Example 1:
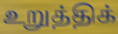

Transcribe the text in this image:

உறுத்திக்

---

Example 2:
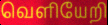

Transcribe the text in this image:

வெளியேறி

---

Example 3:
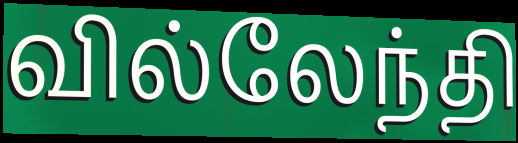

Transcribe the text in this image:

வில்லேந்தி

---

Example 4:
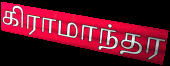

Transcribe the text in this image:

கிராமாந்தர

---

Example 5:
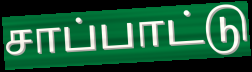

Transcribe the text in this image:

சாப்பாட்டு